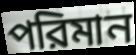
পরিমান